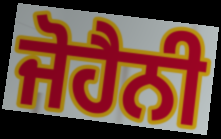
ਜੋਹੈਨੀ